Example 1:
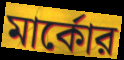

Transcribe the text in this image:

মার্কোর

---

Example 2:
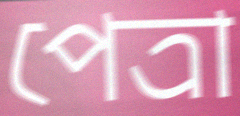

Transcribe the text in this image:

পেত্রা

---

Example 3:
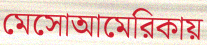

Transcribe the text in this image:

মেসোআমেরিকায়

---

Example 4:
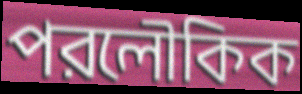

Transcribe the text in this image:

পরলৌকিক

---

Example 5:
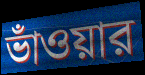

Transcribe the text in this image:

ভাঁওয়ার